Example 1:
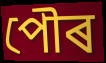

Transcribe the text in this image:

পৌৰ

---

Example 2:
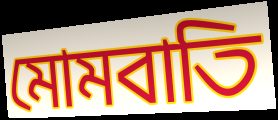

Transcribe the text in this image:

মোমবাতি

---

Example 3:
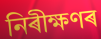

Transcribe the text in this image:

নিৰীক্ষণৰ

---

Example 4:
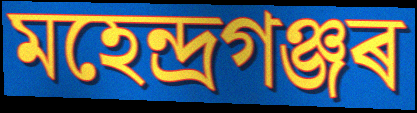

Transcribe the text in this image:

মহেন্দ্ৰগঞ্জৰ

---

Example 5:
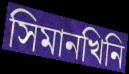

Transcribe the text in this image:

সিমানখিনি